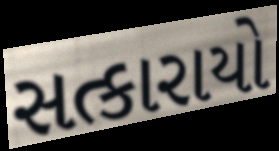
સત્કારાયો